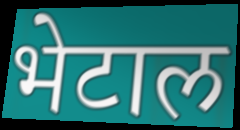
भेटाल